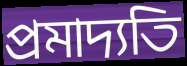
প্রমাদ্যতি